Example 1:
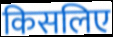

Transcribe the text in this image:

किसलिए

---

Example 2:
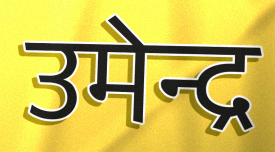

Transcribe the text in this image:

उमेन्द्र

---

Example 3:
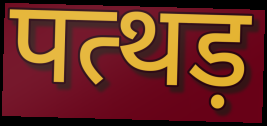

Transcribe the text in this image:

पत्थड़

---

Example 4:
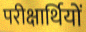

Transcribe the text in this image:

परीक्षार्थियों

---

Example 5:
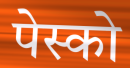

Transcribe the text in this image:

पेस्को